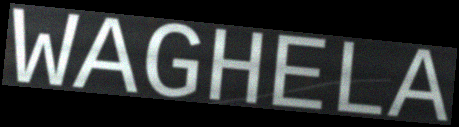
WAGHELA